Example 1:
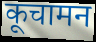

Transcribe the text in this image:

कूचामन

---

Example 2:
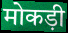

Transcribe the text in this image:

मोकड़ी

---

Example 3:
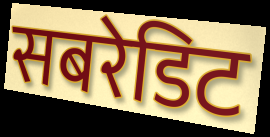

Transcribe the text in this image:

सबरेडिट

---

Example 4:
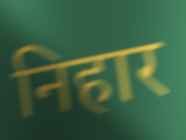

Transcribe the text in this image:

निहार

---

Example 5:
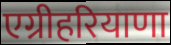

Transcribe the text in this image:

एग्रीहरियाणा